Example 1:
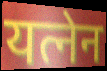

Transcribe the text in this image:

यत्नेन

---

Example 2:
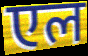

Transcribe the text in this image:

एल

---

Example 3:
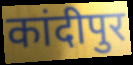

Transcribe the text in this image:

कांदीपुर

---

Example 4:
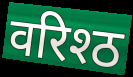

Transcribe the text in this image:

वरिश्ठ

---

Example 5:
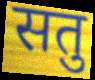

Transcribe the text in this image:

सतु